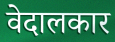
वेदालकार